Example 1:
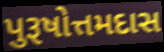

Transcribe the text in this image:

પુરૂષોત્તમદાસ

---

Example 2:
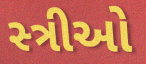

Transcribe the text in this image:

સ્‍ત્રીઓ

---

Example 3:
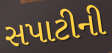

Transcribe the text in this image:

સપાટીની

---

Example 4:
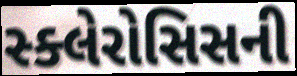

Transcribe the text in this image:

સ્ક્લેરોસિસની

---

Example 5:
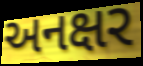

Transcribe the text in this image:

અનક્ષર